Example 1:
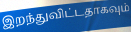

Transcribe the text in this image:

இறந்துவிட்டதாகவும்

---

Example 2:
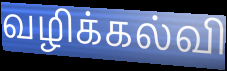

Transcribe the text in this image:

வழிக்கல்வி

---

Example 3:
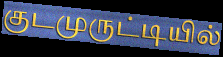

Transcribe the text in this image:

குடமுருட்டியில்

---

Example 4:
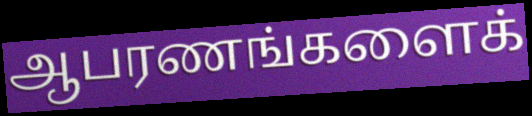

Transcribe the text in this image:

ஆபரணங்களைக்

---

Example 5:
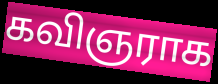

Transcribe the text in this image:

கவிஞராக